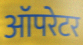
ऑपरेटर